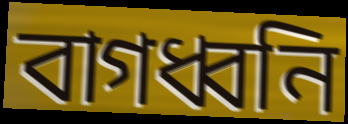
বাগধ্বনি